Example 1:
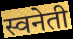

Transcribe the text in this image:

स्वनेती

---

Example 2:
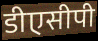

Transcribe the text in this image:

डीएसीपी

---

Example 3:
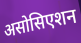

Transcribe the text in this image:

असोसिएशन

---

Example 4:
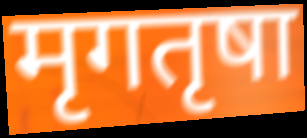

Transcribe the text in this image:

मृगतृषा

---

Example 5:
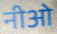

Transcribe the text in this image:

नीओ